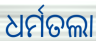
ଧର୍ମତଲା